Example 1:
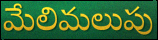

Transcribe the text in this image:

మేలిమలుపు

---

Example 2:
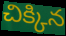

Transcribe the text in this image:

చిక్కిన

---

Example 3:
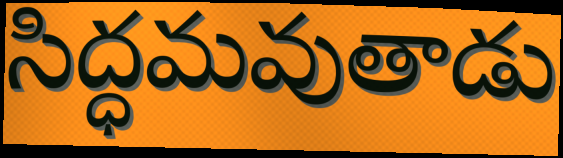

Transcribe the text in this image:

సిద్ధమవుతాడు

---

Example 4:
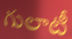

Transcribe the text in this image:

గులాటీ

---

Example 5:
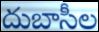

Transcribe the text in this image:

దుబాసీల